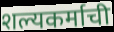
शल्यकर्माची